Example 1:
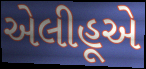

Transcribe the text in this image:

એલીહૂએ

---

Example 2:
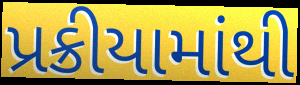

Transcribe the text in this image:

પ્રક્રીયામાંથી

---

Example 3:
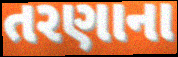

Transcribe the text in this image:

તરણાના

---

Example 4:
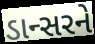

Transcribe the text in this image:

ડાન્સરને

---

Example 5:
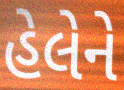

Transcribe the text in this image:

હેલેને